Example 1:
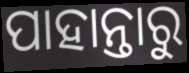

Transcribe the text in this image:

ପାହାନ୍ତାରୁ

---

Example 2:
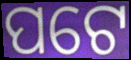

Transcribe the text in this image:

ପଟେ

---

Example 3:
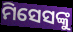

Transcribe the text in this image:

ମିସେସଙ୍କୁ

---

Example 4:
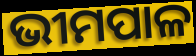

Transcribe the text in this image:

ଭୀମପାଳ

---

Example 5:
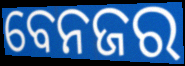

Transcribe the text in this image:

ବେନଜର